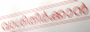
വാശിതീർക്കാൻ